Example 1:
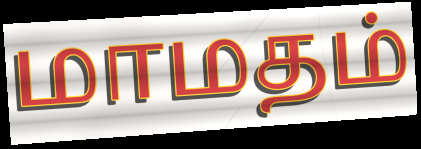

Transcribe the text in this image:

மாமதம்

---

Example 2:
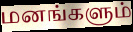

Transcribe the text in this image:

மனங்களும்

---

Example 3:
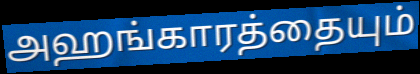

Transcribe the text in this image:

அஹங்காரத்தையும்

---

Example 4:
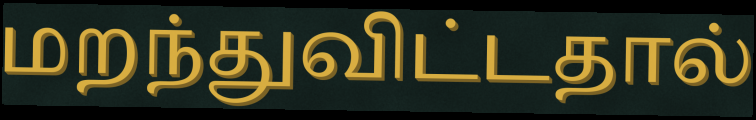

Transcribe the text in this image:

மறந்துவிட்டதால்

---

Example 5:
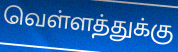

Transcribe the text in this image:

வெள்ளத்துக்கு